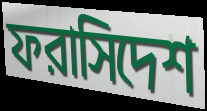
ফরাসিদেশ